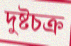
দুষ্টচক্র